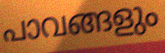
പാവങ്ങളും